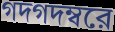
গদগদম্বরে